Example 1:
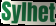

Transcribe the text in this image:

Sylhet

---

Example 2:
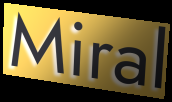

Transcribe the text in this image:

Miral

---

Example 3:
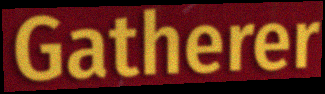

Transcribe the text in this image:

Gatherer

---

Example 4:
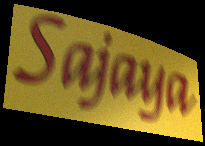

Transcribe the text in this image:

Sajaya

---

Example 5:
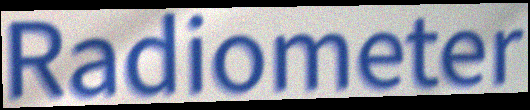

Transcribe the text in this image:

Radiometer